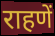
राहणें